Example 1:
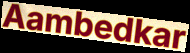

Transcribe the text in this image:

Aambedkar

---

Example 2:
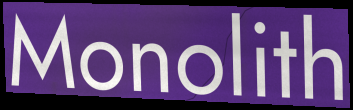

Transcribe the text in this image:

Monolith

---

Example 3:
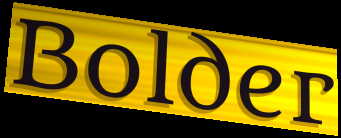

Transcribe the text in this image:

Bolder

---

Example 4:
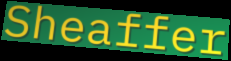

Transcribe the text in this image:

Sheaffer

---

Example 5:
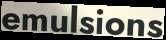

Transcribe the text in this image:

emulsions